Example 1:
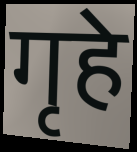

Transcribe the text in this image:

गृहे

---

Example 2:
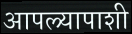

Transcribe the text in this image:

आपल्यापाशी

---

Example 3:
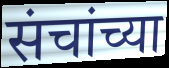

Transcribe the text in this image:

संचांच्या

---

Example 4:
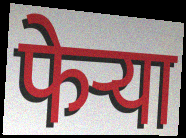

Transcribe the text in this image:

फेऱ्या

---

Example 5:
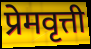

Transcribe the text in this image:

प्रेमवृत्ती